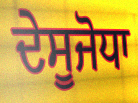
ਦੇਸੂਜੋਧਾ